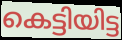
കെട്ടിയിട്ട